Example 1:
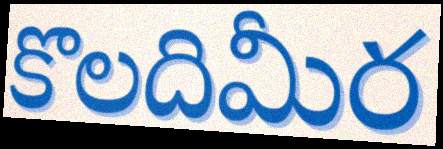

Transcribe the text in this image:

కొలదిమీర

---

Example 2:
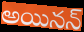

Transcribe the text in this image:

అయినన్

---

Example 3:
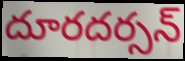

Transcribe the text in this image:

దూరదర్సన్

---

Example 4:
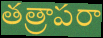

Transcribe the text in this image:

తత్రాపరా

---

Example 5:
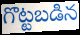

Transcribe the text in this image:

గొట్టబడిన